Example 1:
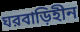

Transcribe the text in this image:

ঘরবাড়িহীন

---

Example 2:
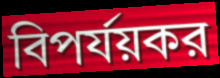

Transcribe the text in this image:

বিপর্যয়কর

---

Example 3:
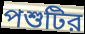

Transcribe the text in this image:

পশুটির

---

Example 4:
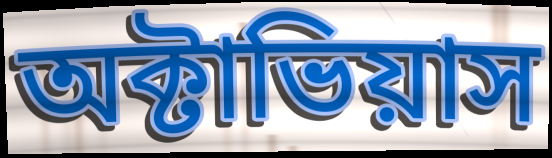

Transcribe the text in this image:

অক্টাভিয়াস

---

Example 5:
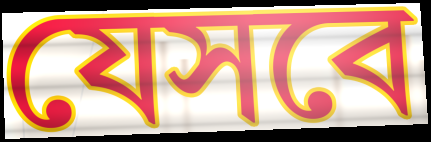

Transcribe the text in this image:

যেসবে